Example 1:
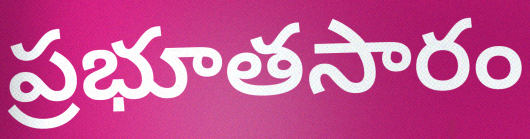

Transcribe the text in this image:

ప్రభూతసారం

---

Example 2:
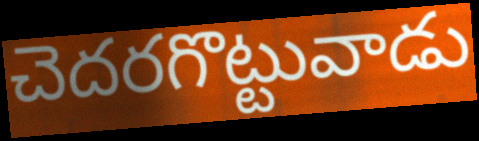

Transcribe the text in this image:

చెదరగొట్టువాడు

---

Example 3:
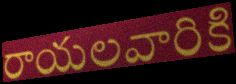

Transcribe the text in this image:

రాయలవారికి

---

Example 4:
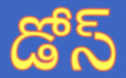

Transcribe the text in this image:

డోస్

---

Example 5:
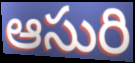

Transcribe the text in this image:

ఆసురి